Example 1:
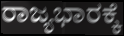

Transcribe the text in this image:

ರಾಜ್ಯಭಾರಕ್ಕೆ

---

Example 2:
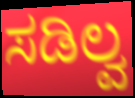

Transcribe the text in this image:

ಸಡಿಲ್ವ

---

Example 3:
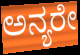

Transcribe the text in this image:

ಅನ್ಯರೇ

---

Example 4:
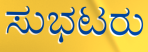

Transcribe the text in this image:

ಸುಭಟರು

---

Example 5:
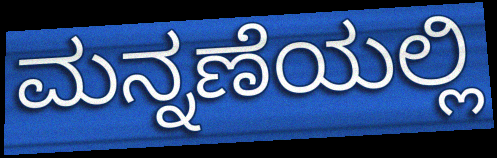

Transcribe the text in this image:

ಮನ್ನಣೆಯಲ್ಲಿ